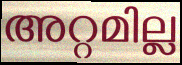
അറ്റമില്ല